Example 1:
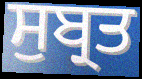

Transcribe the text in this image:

ਸੁਬ੍ਰਤ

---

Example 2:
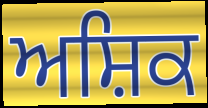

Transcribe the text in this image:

ਅਸ਼ਿਕ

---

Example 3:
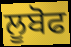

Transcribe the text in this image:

ਲੂਬੋਫ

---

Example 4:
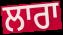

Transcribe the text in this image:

ਲਾਰਾ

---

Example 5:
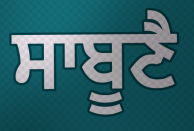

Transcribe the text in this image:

ਸਾਬੂਣੈ